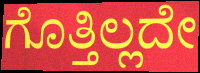
ಗೊತ್ತಿಲ್ಲದೇ